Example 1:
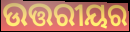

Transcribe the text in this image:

ଉତ୍ତରୀୟର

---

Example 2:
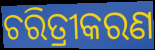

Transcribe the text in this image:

ଚରିତ୍ରୀକରଣ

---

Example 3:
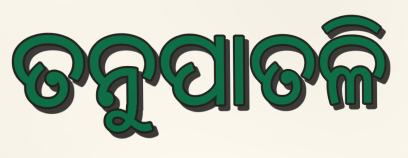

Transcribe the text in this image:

ତନୁପାତଳି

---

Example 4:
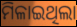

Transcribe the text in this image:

ମିଳାଇଥିଲା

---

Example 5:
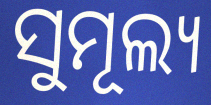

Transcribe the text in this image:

ସୁମୂଲ୍ୟ